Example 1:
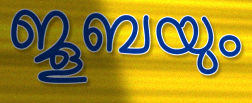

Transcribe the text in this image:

ജൂബയും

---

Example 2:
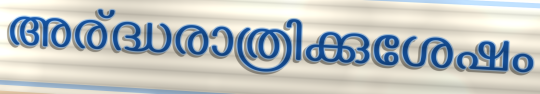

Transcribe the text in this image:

അര്ദ്ധരാത്രിക്കുശേഷം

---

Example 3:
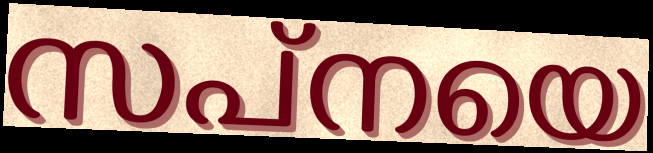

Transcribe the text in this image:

സപ്‌നയെ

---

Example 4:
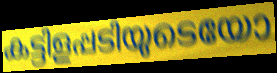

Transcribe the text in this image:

കട്ടിളപ്പടിയുടെയോ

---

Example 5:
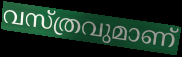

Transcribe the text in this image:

വസ്ത്രവുമാണ്